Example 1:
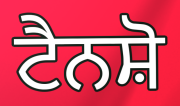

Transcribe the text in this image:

ਟੈਨਸ਼ੋ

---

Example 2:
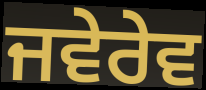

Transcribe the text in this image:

ਜਵੇਰੇਵ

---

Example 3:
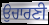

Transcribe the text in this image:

ਉਚਾਰਣੀ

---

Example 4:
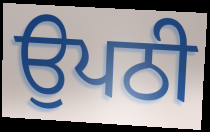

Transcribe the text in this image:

ਉਪਠੀ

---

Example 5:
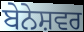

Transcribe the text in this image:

ਬੇਨੇਸ਼ਵਰ